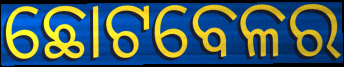
ଛୋଟବେଳର